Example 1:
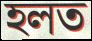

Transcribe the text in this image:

হলত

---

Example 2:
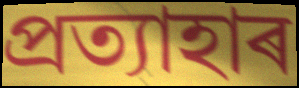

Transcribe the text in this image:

প্ৰত্যাহাৰ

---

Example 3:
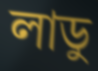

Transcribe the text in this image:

লাডু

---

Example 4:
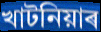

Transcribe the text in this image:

খাটনিয়াৰ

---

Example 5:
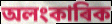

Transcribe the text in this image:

অলংকাৰিক